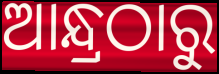
ଆନ୍ଧ୍ରଠାରୁ